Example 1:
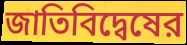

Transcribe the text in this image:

জাতিবিদ্বেষের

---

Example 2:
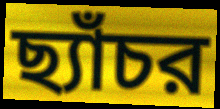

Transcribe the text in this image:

ছ্যাঁচর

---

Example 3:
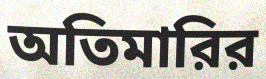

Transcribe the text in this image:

অতিমারির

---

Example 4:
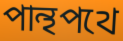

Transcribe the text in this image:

পান্থপথে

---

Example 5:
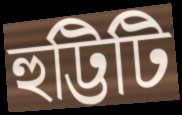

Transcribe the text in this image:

হুট্টিটি